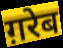
ग़रेब